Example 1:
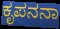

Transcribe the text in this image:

ಕೃಪನನಾ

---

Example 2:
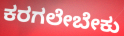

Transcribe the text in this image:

ಕರಗಲೇಬೇಕು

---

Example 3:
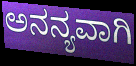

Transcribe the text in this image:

ಅನನ್ಯವಾಗಿ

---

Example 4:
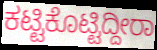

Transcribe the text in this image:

ಕಟ್ಟಿಕೊಟ್ಟಿದ್ದೀರಾ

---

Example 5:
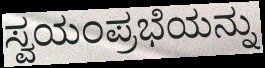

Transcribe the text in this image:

ಸ್ವಯಂಪ್ರಭೆಯನ್ನು